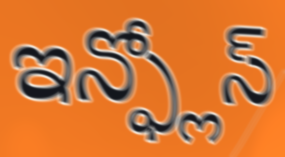
ఇన్ఫ్లోస్